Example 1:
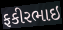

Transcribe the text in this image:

ફકીરભાઇ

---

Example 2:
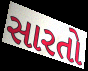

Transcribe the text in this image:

સારતો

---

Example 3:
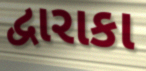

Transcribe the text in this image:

દ્વારાકા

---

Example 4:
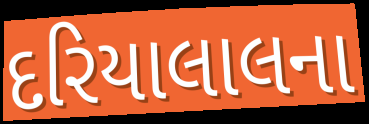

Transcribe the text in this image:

દરિયાલાલના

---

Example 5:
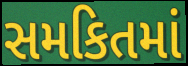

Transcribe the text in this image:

સમકિતમાં